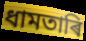
ধামতাৰি